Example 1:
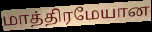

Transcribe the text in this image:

மாத்திரமேயான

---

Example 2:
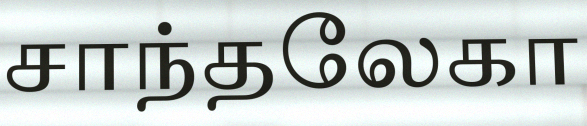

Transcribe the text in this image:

சாந்தலேகா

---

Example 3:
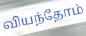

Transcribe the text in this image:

வியந்தோம்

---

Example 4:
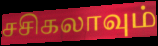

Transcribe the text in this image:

சசிகலாவும்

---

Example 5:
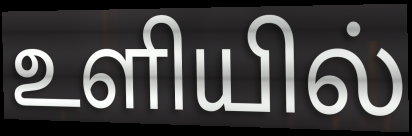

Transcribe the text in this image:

உளியில்